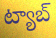
ట్యాబ్